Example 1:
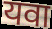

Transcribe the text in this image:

यवा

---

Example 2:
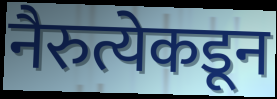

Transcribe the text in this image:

नैरुत्येकडून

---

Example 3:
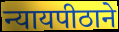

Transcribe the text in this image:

न्यायपीठाने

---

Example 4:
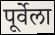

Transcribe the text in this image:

पूर्वेला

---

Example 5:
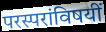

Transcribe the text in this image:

परस्परांविषयीं